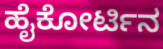
ಹೈಕೋರ್ಟಿನ